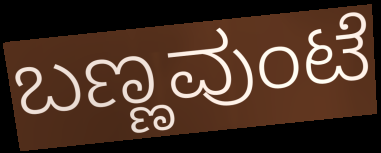
ಬಣ್ಣವುಂಟೆ